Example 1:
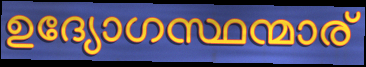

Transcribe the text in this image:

ഉദ്യോഗസ്ഥന്മാര്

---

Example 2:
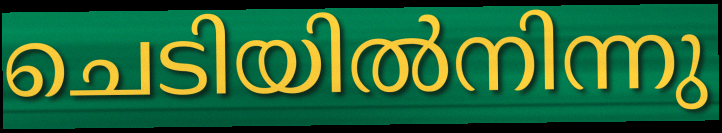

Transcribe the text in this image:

ചെടിയിൽനിന്നു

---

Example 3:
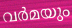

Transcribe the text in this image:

വർമയും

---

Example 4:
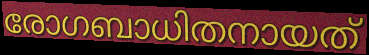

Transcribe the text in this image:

രോഗബാധിതനായത്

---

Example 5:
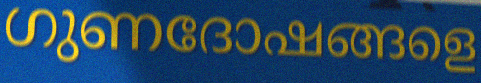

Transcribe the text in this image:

ഗുണദോഷങ്ങളെ